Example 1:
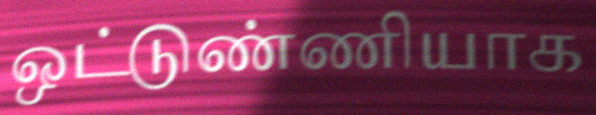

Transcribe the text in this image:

ஒட்டுண்ணியாக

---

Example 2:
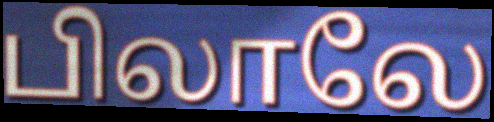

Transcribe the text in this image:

பிலாலே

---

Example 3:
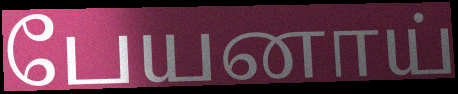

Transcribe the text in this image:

பேயனாய்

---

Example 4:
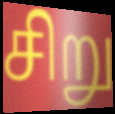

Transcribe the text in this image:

சிறு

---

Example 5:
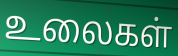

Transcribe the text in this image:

உலைகள்